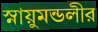
স্নায়ুমন্ডলীর